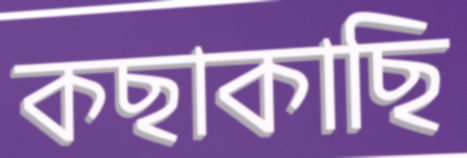
কছাকাছি